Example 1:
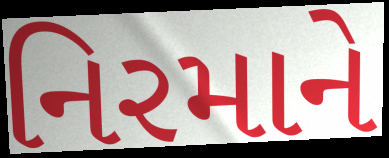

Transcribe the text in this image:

નિરમાને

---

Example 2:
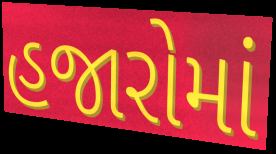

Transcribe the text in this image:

હજારોમાં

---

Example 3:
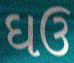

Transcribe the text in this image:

ઘઉ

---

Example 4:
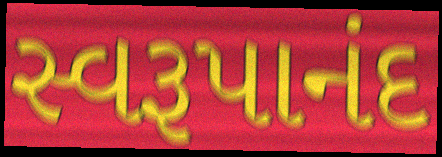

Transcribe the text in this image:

સ્વરૂપાનંદ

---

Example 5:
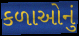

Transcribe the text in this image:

કળાઓનું